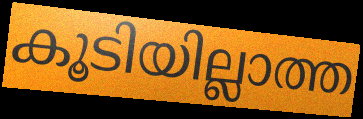
കൂടിയില്ലാത്ത